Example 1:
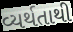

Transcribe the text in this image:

વ્યર્થતાથી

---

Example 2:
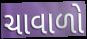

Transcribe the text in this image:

ચાવાળો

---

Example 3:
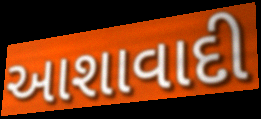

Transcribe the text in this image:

આશાવાદી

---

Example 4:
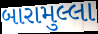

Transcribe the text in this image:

બારામુલ્લા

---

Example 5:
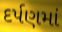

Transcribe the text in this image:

દર્પણમાં